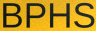
BPHS